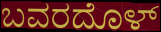
ಬವರದೊಳ್